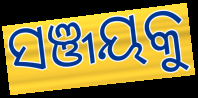
ସଞ୍ଜୟକୁ